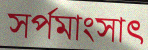
সর্পমাংসাৎ